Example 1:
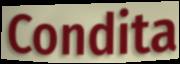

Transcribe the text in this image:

Condita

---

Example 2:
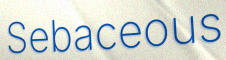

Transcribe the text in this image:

Sebaceous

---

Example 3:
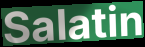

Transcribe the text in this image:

Salatin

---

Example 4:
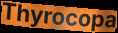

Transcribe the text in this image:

Thyrocopa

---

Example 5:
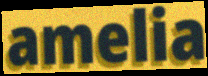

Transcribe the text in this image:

amelia